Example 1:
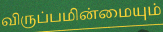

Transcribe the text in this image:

விருப்பமின்மையும்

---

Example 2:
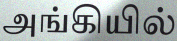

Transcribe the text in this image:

அங்கியில்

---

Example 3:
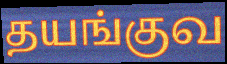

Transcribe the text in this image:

தயங்குவ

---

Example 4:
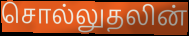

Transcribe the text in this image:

சொல்லுதலின்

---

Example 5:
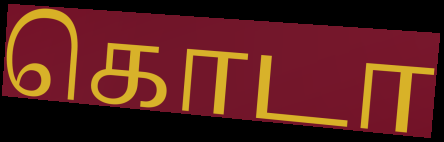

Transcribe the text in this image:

கொடா